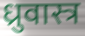
ध्रुवास्त्र